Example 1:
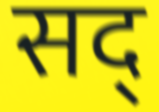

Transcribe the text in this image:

सद्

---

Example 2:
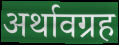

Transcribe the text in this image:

अर्थावग्रह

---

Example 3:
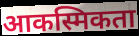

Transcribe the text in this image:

आकस्मिकता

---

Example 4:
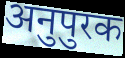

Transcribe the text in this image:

अनुपुरक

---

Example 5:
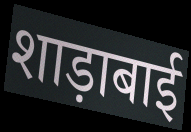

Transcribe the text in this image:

शाड़ाबाई